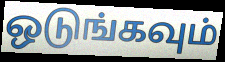
ஒடுங்கவும்